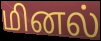
மினல்